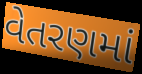
વેતરણમાં